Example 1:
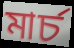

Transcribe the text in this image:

মাৰ্চ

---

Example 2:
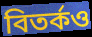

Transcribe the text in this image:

বিতৰ্কও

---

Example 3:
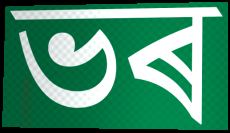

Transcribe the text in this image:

ভৰ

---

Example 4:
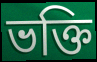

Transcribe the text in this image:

ভক্তি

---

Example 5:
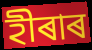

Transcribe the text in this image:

হীৰাৰ